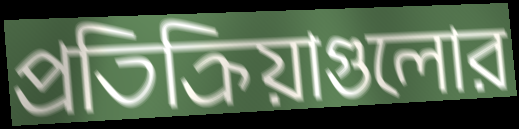
প্রতিক্রিয়াগুলোর